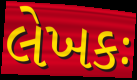
લેખકઃ